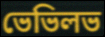
ভেভিলভ